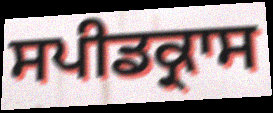
ਸਪੀਡਕ੍ਰਾਸ